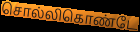
சொல்லிகொண்டே